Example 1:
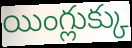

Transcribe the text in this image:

యింగ్లుక్కు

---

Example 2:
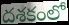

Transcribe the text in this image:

దశకంలో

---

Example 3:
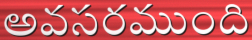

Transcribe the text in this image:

అవసరముంది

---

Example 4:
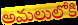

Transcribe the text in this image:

అమలులోకి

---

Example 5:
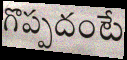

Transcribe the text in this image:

గొప్పదంటే